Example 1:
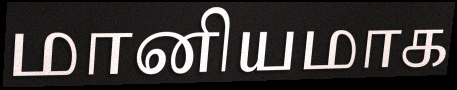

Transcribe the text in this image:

மானியமாக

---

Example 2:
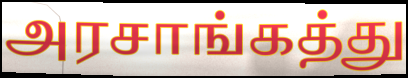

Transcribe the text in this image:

அரசாங்கத்து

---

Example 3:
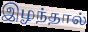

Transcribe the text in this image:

இழந்தால்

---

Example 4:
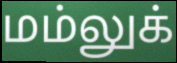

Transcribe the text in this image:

மம்லுக்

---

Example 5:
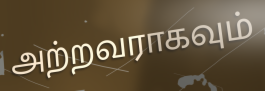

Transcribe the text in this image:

அற்றவராகவும்